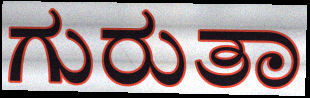
ಗುರುತಾ